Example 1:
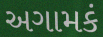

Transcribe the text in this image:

અગામકં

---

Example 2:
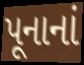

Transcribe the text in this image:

પૂનાનાં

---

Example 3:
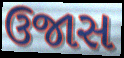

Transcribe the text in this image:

ઉજાસ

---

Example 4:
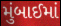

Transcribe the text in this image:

મુંબાઈમાં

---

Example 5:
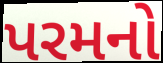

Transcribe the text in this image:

પરમનો